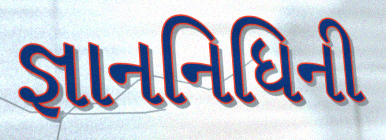
જ્ઞાનનિધિની